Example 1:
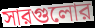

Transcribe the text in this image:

সারগুলোর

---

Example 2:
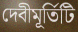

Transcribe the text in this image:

দেবীমূর্তিটি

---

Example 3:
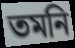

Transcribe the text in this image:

তমনি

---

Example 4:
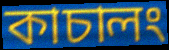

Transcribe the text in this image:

কাচালং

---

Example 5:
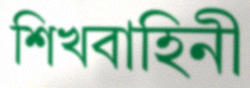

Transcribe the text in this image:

শিখবাহিনী